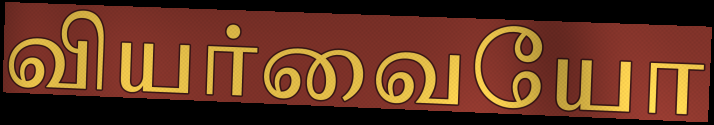
வியர்வையோ